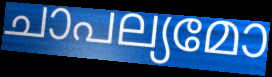
ചാപല്യമോ